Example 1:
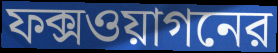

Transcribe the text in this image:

ফক্সওয়াগনের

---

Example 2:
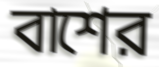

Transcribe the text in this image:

বাশের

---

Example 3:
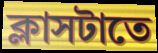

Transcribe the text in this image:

ক্লাসটাতে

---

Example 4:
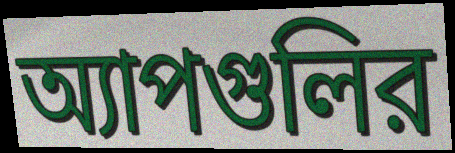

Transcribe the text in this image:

অ্যাপগুলির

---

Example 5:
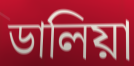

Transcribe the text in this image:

ডালিয়া